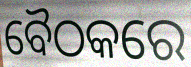
ବୈଠକରେ